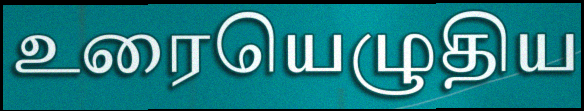
உரையெழுதிய